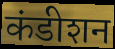
कंडीशन